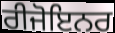
ਰੀਜੋਇਨਰ